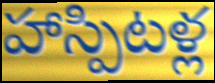
హాస్పిటళ్ల